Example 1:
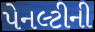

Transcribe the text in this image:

પેનલ્ટીની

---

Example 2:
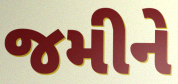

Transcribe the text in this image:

જમીને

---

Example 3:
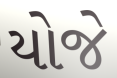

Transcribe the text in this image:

યોજે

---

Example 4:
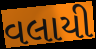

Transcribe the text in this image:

વલાયી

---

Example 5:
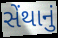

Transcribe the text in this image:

સેંથાનું